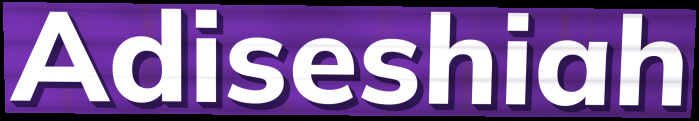
Adiseshiah